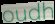
oudh